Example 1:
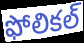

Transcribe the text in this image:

ఫోలికల్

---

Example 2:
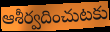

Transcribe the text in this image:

ఆశీర్వదించుటకు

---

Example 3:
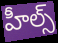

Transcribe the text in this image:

హీల్స్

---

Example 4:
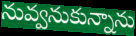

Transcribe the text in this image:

నువ్వనుకున్నాను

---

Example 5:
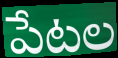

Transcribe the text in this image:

పేటల